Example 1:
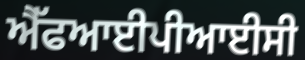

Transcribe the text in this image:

ਐੱਫਆਈਪੀਆਈਸੀ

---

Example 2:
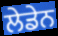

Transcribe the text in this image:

ਲੇਡੇਨ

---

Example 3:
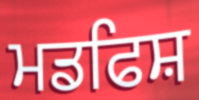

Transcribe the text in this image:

ਮਡਫਿਸ਼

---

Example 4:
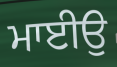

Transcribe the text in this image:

ਮਾਈਉ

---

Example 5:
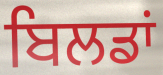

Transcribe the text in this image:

ਬਿਲਡਾਂ